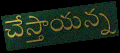
చేస్తాయన్న